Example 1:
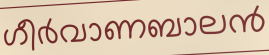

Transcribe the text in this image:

ഗീർവാണബാലൻ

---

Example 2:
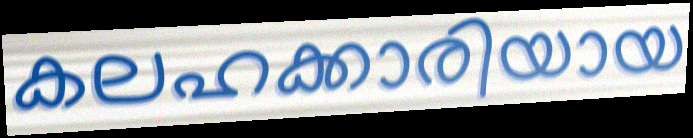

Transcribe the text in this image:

കലഹക്കാരിയായ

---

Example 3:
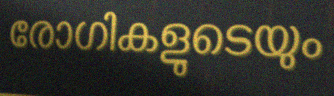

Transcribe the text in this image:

രോഗികളുടെയും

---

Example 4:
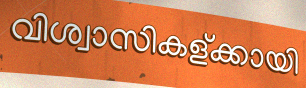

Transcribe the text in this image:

വിശ്വാസികള്ക്കായി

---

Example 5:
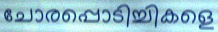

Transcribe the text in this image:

ചോരപ്പൊടിച്ചികളെ